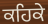
ਕਹਿਕੇ